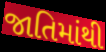
જાતિમાંથી